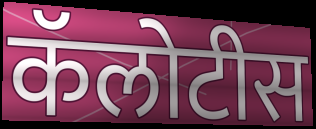
कॅलोटीस